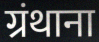
ग्रंथाना